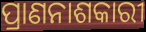
ପ୍ରାଣନାଶକାରୀ